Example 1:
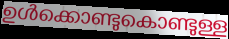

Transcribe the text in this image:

ഉൾക്കൊണ്ടുകൊണ്ടുള്ള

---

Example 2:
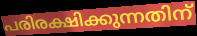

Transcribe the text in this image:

പരിരക്ഷിക്കുന്നതിന്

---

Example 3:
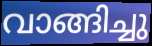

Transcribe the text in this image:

വാങ്ങിച്ചു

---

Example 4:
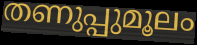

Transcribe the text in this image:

തണുപ്പുമൂലം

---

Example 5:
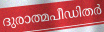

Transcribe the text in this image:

ദുരാത്മപീഡിതർ